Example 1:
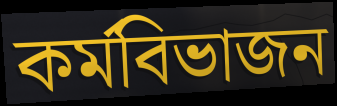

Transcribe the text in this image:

কর্মবিভাজন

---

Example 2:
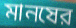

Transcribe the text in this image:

মানষের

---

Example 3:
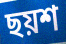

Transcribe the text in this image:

ছয়শ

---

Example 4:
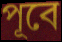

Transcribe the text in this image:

পূবে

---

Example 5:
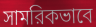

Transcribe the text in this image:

সামরিকভাবে